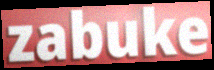
zabuke